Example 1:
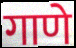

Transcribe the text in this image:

गाणे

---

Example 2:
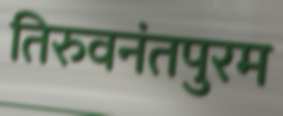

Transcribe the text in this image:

तिरुवनंतपुरम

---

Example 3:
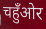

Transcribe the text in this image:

चहुँओर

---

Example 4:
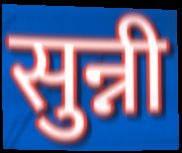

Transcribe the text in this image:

सुन्नी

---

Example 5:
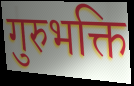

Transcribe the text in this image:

गुरुभक्ति